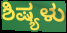
ಶಿಷ್ಯಳು